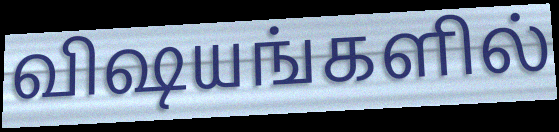
விஷயங்களில்